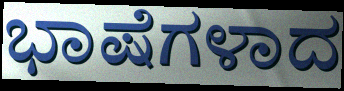
ಭಾಷೆಗಳಾದ